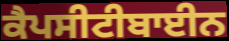
ਕੈਪਸੀਟੀਬਾਈਨ